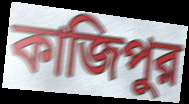
কাজিপুর